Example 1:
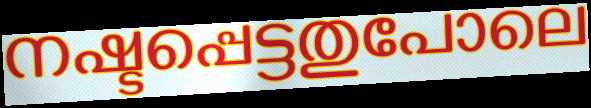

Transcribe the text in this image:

നഷ്ടപ്പെട്ടതുപോലെ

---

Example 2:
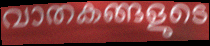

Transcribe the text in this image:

വാതകങ്ങളുടെ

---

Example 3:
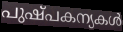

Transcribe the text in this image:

പുഷ്പകന്യകൾ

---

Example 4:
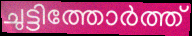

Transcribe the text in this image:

ചുട്ടിത്തോർത്ത്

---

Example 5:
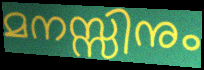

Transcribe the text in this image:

മനസ്സിനും